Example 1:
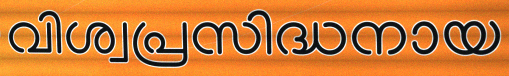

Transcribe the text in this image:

വിശ്വപ്രസിദ്ധനായ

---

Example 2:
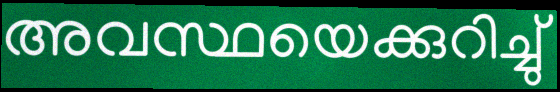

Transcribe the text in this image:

അവസ്ഥയെക്കുറിച്ചു്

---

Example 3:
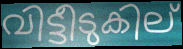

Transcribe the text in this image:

വിട്ടീടുകില്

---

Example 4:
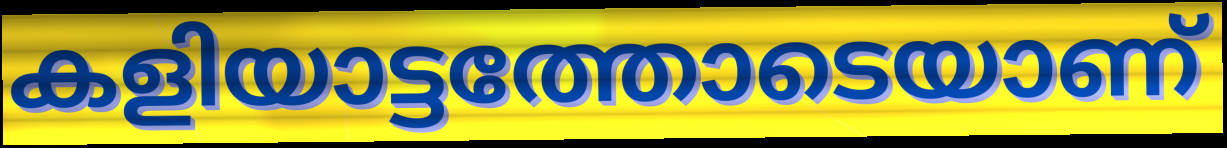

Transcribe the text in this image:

കളിയാട്ടത്തോടെയാണ്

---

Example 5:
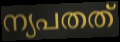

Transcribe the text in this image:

ന്യപതത്